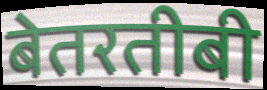
बेतरतीबी